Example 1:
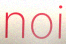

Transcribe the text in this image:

noi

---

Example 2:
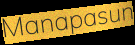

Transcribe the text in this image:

Manapasun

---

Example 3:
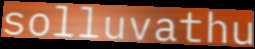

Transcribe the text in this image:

solluvathu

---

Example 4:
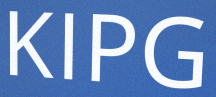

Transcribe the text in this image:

KIPG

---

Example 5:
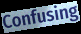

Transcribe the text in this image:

Confusing